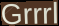
Grrrl